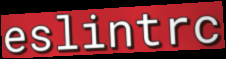
eslintrc